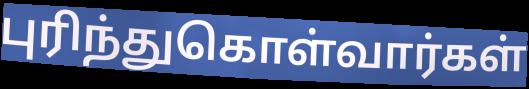
புரிந்துகொள்வார்கள்